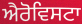
ਐਰੋਵਿਸਟਾ